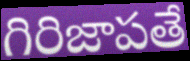
గిరిజాపతే